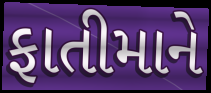
ફાતીમાને